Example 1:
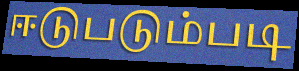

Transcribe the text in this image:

ஈடுபடும்படி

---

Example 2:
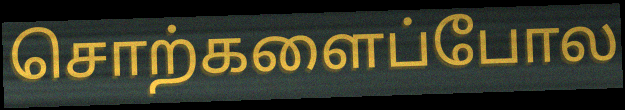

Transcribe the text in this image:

சொற்களைப்போல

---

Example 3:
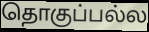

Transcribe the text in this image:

தொகுப்பல்ல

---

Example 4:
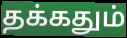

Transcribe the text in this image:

தக்கதும்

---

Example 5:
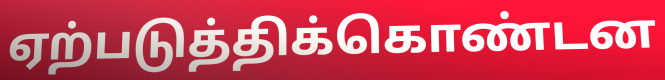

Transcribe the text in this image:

ஏற்படுத்திக்கொண்டன